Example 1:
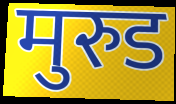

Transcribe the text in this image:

मुरुड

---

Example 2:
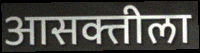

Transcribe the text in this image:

आसक्तीला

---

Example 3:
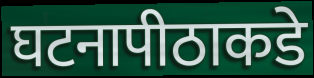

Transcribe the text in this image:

घटनापीठाकडे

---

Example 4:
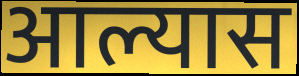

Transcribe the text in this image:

आल्यास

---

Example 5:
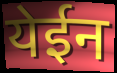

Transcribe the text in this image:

येईन